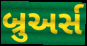
બ્રુઅર્સ